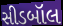
સીડબૉલ